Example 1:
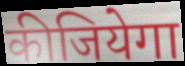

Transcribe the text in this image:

कीजियेगा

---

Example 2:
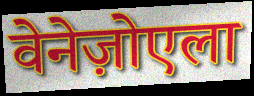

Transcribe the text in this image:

वेनेज़ोएला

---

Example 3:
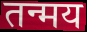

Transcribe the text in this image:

तन्मय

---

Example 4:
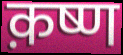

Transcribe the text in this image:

क़ष्ण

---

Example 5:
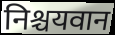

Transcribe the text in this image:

निश्चयवान